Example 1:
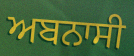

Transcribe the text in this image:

ਅਬਨਾਸੀ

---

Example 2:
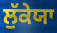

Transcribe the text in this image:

ਲੁੱਕੇਯਾ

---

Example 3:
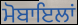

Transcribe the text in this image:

ਮੋਬਾਇਲਾਂ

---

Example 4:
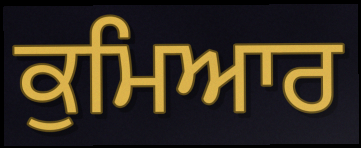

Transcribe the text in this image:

ਕੁਮਿਆਰ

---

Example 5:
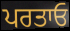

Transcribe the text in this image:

ਪਰਤਾਓ